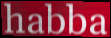
habba